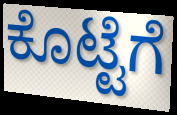
ಕೊಟ್ಟೆಗೆ